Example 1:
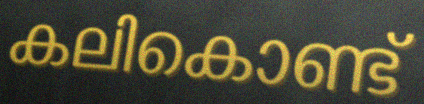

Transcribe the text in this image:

കലികൊണ്ട്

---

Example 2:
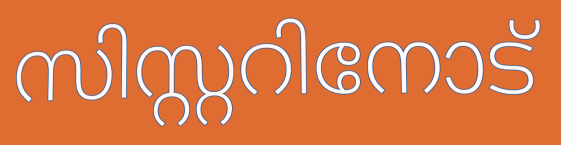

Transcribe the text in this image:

സിസ്റ്ററിനോട്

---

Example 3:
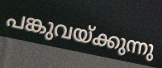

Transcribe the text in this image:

പങ്കുവയ്ക്കുന്നു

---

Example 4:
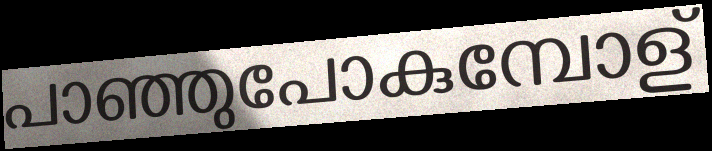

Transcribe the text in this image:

പാഞ്ഞുപോകുമ്പോള്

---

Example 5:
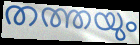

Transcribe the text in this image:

തത്തയും